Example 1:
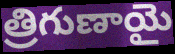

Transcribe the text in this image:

త్రిగుణాయై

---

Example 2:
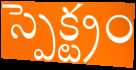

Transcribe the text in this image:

స్పెక్ట్రం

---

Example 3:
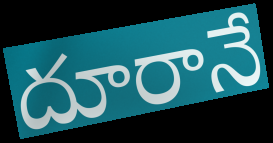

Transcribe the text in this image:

దూరానే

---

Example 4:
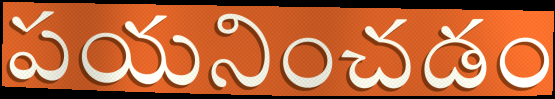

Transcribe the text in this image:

పయనించడం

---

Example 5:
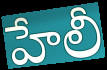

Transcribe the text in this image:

హేలీ